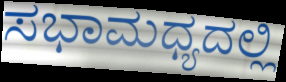
ಸಭಾಮಧ್ಯದಲ್ಲಿ